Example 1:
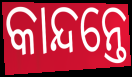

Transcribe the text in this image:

କାନ୍ଦନ୍ତେ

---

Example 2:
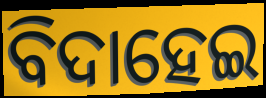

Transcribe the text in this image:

ବିଦାହେଇ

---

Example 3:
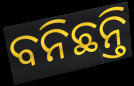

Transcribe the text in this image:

ବନିଛନ୍ତି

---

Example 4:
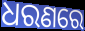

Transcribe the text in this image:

ଧରଣରେ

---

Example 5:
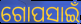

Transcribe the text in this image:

ଗୋପସାଇଁ